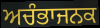
ਅਚੰਭਾਜਨਕ